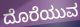
ದೊರೆಯುವ